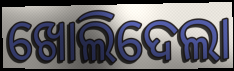
ଖୋଲିଦେଲା